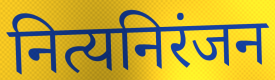
नित्यनिरंजन